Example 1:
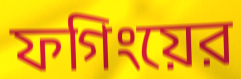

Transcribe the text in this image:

ফগিংয়ের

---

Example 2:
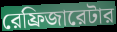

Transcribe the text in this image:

রেফ্রিজারেটার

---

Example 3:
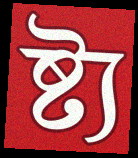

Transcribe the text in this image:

ষ্ট্য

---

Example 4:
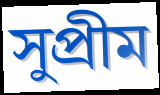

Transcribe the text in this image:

সুপ্রীম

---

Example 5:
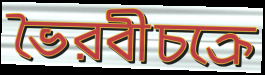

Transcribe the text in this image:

ভৈরবীচক্রে